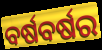
ବର୍ଷବର୍ଷର